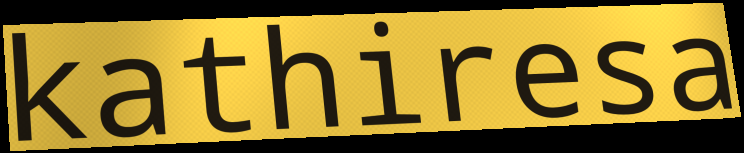
kathiresa